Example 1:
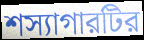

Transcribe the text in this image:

শস্যাগারটির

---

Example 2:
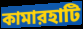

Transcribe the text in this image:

কামারহাটি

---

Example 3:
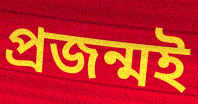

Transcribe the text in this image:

প্রজন্মই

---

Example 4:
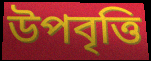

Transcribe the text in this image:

উপবৃত্তি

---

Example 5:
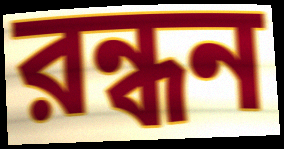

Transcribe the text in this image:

রন্ধন